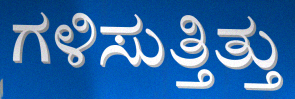
ಗಳಿಸುತ್ತಿತ್ತು